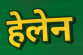
हेलेन